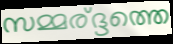
സമ്മര്ദ്ദത്തെ